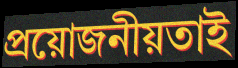
প্ৰয়োজনীয়তাই